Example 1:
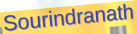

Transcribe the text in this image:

Sourindranath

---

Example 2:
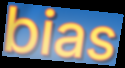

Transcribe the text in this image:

bias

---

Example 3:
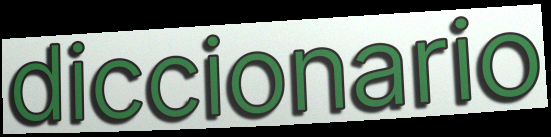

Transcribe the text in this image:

diccionario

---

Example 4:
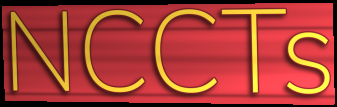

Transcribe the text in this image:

NCCTs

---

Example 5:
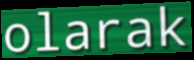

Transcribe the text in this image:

olarak